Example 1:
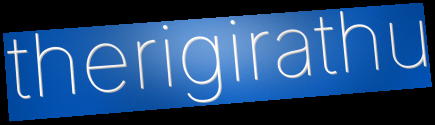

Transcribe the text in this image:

therigirathu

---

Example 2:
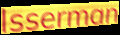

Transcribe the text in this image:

Isserman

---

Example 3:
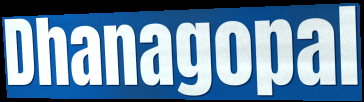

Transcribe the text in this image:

Dhanagopal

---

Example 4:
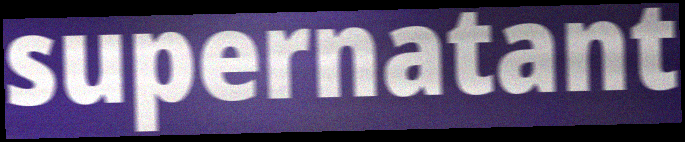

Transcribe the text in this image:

supernatant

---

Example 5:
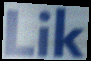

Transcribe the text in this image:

Lik